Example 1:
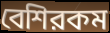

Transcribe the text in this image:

বেশিরকম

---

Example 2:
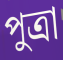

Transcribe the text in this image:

পুত্রা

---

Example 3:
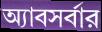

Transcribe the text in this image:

অ্যাবসর্বার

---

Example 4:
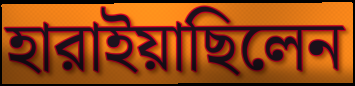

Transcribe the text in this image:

হারাইয়াছিলেন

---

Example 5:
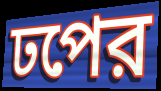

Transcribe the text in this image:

ঢপের